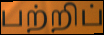
பற்றிப்